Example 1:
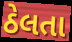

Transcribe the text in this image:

ઠેલતા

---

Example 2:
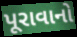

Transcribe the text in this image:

પૂરાવાનો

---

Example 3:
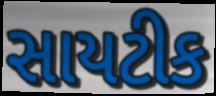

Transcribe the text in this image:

સાયટીક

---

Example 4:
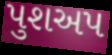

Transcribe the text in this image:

પુશઅપ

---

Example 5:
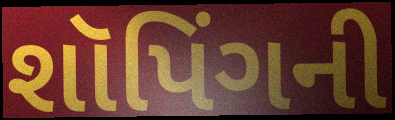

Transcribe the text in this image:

શૉપિંગની